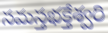
సమస్తభక్తేశ్వరి